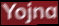
Yojna